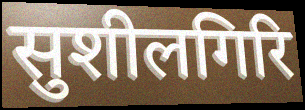
सुशीलगिरि